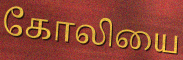
கோலியை